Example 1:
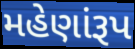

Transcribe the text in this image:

મહેણાંરૂપ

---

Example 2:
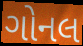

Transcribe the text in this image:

ગોનલ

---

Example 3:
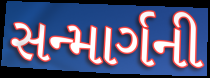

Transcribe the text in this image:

સન્માર્ગની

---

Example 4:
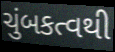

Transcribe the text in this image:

ચુંબકત્વથી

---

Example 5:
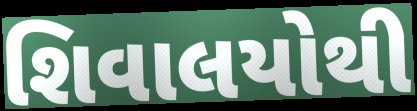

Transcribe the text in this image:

શિવાલયોથી